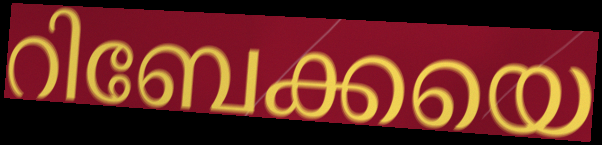
റിബേക്കയെ